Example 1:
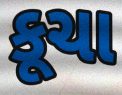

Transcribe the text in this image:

કૂચા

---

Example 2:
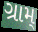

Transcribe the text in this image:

ગ્રામ્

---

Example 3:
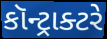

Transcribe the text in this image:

કૉન્ટ્રાક્ટરે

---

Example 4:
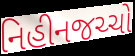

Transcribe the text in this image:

નિહીનજચ્ચો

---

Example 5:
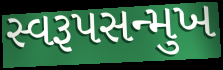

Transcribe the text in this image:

સ્વરૂપસન્મુખ